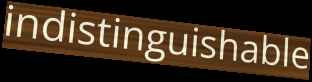
indistinguishable